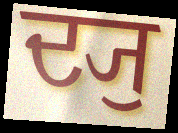
ਦ੍ਯੁ